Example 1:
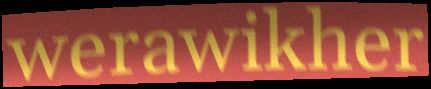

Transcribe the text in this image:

werawikher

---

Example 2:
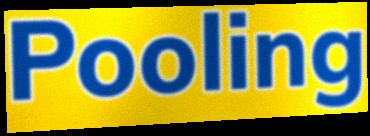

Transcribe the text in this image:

Pooling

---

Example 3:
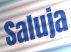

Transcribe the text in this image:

Saluja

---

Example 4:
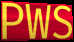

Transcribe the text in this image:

PWS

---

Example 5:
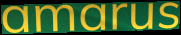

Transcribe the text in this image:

amarus